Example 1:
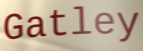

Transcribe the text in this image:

Gatley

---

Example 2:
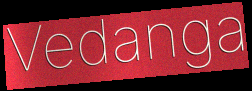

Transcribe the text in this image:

Vedanga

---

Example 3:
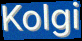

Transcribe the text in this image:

Kolgi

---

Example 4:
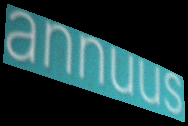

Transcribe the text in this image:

annuus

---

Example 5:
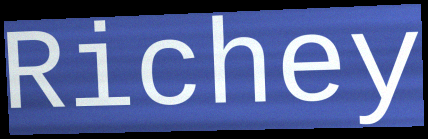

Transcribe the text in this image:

Richey